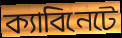
ক্যাবিনেটে